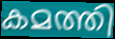
കമത്തി